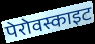
पेरोवस्काइट